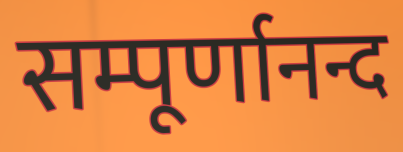
सम्पूर्णानन्द